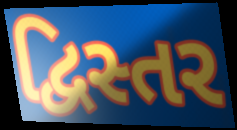
દ્વિસ્તર